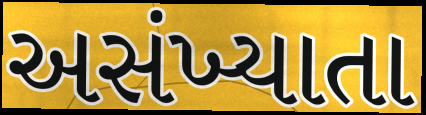
અસંખ્યાતા